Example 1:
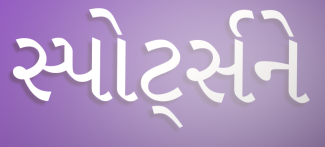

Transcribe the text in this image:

સ્પોર્ટ્સને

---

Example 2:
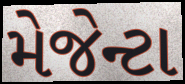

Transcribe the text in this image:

મેજેન્ટા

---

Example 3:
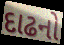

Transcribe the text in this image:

દાઢનો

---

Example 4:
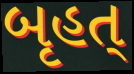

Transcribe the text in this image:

બૃહત્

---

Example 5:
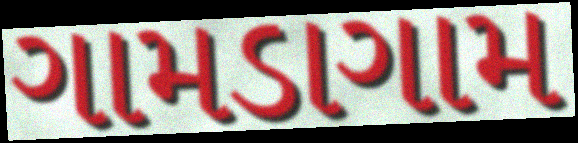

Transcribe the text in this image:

ગામડાગામ